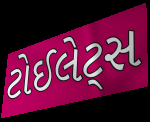
ટોઈલેટ્સ